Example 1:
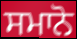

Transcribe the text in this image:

ਸਮਾਨੋ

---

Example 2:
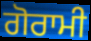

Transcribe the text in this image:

ਗੋਰਾਮੀ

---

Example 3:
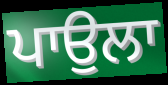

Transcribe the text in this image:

ਪਾਉਲਾ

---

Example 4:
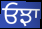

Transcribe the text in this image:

ਓਝਾ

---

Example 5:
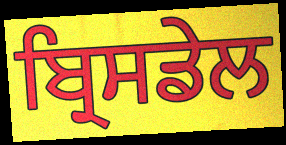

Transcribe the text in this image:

ਬ੍ਰਿਸਡੇਲ